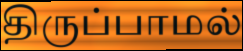
திருப்பாமல்